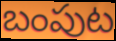
బంపుట